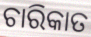
ଚାରିକାତ